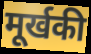
मूर्खकी